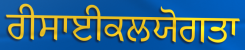
ਰੀਸਾਈਕਲਯੋਗਤਾ